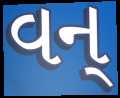
વન્